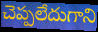
చెప్పలేదుగాని